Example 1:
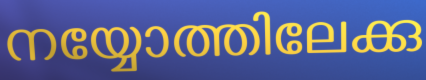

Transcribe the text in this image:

നയ്യോത്തിലേക്കു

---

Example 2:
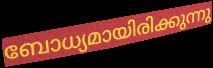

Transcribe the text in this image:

ബോധ്യമായിരിക്കുന്നു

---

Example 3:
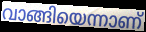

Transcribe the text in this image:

വാങ്ങിയെന്നാണ്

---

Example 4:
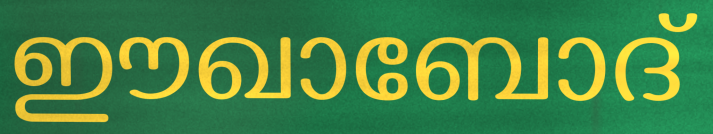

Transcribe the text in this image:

ഈഖാബോദ്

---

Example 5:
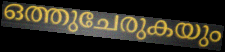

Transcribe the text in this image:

ഒത്തുചേരുകയും